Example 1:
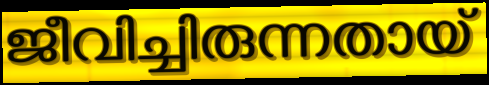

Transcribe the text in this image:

ജീവിച്ചിരുന്നതായ്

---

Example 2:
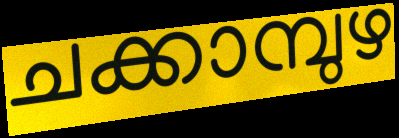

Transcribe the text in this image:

ചക്കാമ്പുഴ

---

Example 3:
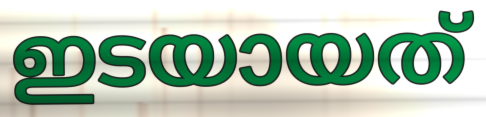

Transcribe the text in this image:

ഇടയായത്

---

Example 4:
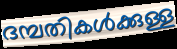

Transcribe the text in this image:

ദമ്പതികൾക്കുള്ള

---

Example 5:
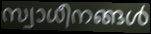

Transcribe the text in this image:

സ്വാധീനങ്ങൾ